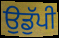
ਉਡੁੱਪੀ